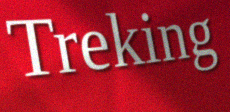
Treking